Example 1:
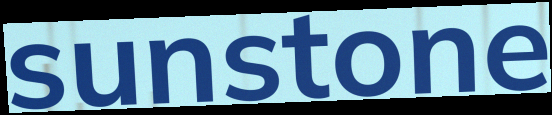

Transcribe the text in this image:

sunstone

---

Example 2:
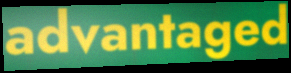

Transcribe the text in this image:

advantaged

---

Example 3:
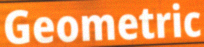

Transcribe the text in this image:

Geometric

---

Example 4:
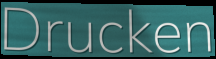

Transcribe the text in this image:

Drucken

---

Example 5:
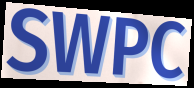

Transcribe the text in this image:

SWPC